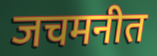
जचमनीत